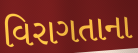
વિરાગતાના